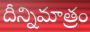
దీన్నిమాత్రం